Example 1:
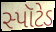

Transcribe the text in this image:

સ્પૉટેડ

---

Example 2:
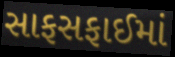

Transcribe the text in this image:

સાફસફાઈમાં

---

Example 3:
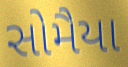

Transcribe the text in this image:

સોમૈયા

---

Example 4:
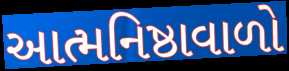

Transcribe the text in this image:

આત્મનિષ્ઠાવાળો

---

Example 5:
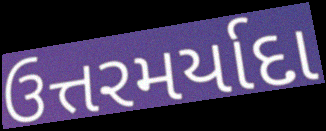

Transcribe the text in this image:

ઉત્તરમર્યાદા